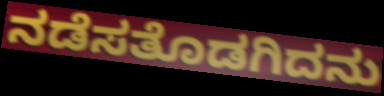
ನಡೆಸತೊಡಗಿದನು